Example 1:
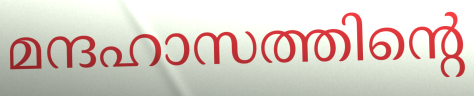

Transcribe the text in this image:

മന്ദഹാസത്തിന്റെ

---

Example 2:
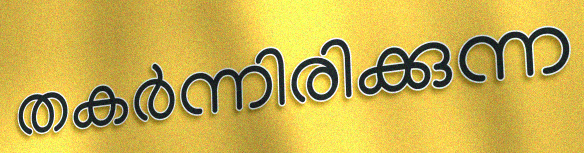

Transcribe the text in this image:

തകർന്നിരിക്കുന്ന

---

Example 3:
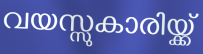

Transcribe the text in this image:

വയസ്സുകാരിയ്ക്ക്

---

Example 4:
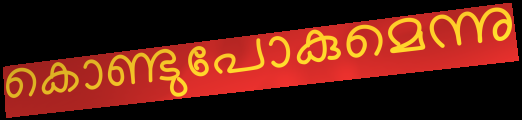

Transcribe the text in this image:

കൊണ്ടുപോകുമെന്നു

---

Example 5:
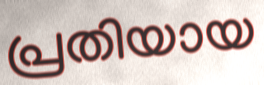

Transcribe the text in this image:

പ്രതിയായ